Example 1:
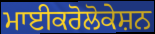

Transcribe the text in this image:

ਮਾਈਕਰੋਲੋਕੇਸ਼ਨ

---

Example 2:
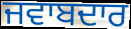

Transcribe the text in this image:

ਜਵਾਬਦਾਰ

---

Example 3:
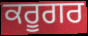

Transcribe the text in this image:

ਕਰੂਗਰ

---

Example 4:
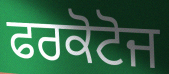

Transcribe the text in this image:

ਫਰਕੋਟੋਜ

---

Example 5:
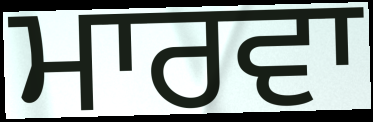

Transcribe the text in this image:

ਮਾਰਵਾ